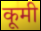
कूमी